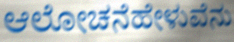
ಆಲೋಚನೆಹೇಳುವೆನು